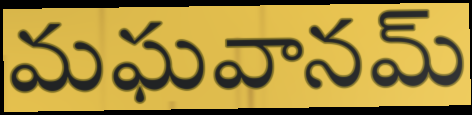
మఘవానమ్